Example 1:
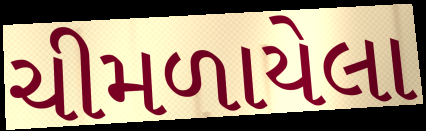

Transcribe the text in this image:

ચીમળાયેલા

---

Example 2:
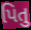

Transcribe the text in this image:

પિતુ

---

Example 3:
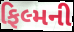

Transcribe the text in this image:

ફિલ્મની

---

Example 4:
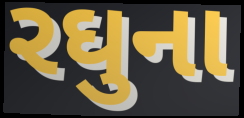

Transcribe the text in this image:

રઘુના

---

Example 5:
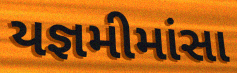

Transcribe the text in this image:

યજ્ઞમીમાંસા